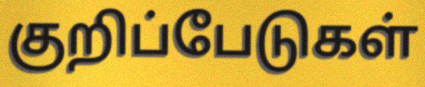
குறிப்பேடுகள்